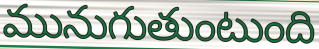
మునుగుతుంటుంది